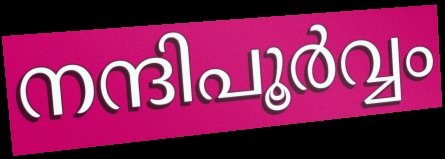
നന്ദിപൂർവ്വം